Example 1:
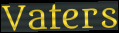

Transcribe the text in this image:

Vaters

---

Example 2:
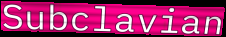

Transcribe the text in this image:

Subclavian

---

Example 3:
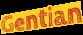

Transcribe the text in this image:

Gentian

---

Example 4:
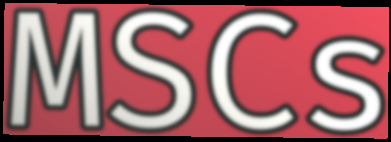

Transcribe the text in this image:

MSCs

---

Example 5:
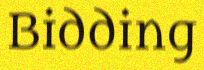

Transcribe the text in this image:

Bidding